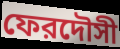
ফেরদৌসী